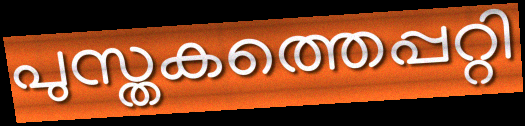
പുസ്തകത്തെപ്പറ്റി